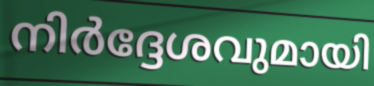
നിർദ്ദേശവുമായി